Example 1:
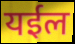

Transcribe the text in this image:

यईल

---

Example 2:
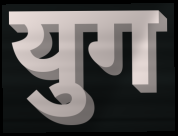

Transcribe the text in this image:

युग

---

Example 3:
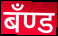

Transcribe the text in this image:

बँण्ड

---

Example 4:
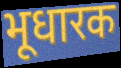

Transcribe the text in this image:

भूधारक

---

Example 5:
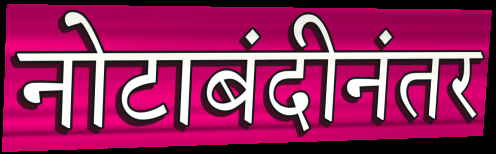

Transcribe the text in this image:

नोटाबंदीनंतर